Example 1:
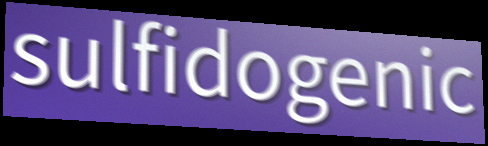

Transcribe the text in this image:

sulfidogenic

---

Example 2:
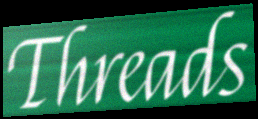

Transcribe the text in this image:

Threads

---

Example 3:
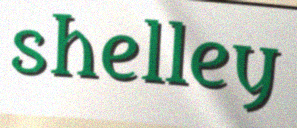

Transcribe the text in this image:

shelley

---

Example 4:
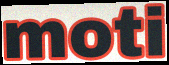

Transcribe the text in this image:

moti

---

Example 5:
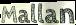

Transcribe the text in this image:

Mallan